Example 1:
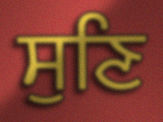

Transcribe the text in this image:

ਸੁਣਿ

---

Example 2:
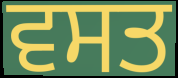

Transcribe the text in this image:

ਵਸਤ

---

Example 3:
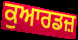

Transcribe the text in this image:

ਕੁਆਰਡਜ਼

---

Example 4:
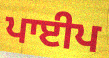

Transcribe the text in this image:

ਪਾਈਪ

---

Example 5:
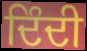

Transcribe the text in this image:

ਦਿੰਦੀ